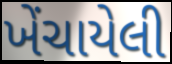
ખેંચાયેલી